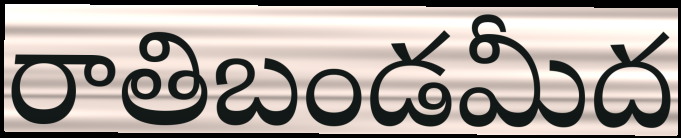
రాతిబండమీద